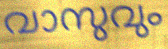
വാസുവും